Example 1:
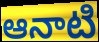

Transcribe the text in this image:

ఆనాటి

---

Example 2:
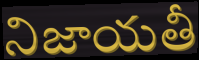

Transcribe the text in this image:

నిజాయతీ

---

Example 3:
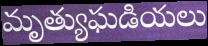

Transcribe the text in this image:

మృత్యుఘడియలు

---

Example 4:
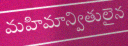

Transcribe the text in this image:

మహిమాన్వితులైన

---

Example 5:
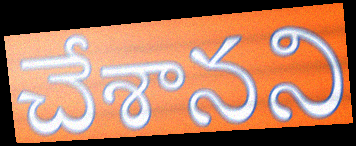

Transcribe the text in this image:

చేశానని